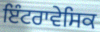
ਇੰਟਰਾਵੇਸਿਕ